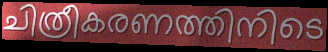
ചിത്രീകരണത്തിനിടെ